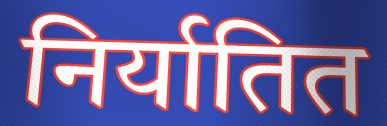
निर्यातित